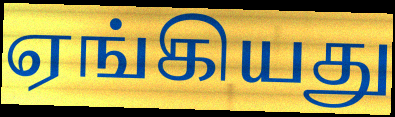
ஏங்கியது